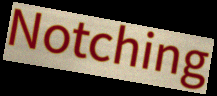
Notching